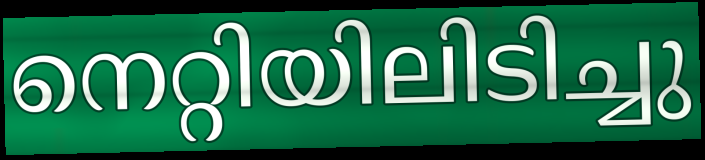
നെറ്റിയിലിടിച്ചു